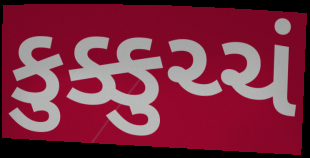
કુક્કુચ્ચં